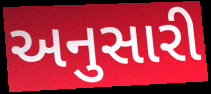
અનુસારી